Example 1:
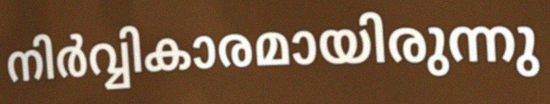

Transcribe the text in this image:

നിർവ്വികാരമായിരുന്നു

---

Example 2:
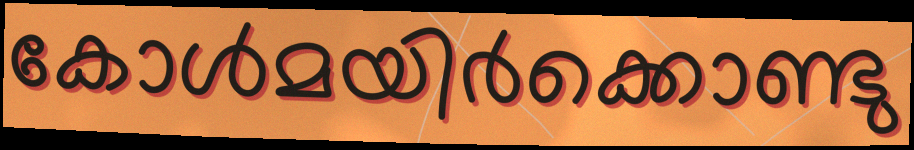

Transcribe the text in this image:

കോൾമയിർക്കൊണ്ടു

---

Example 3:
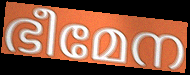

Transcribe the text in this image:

ഭീമേന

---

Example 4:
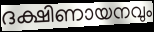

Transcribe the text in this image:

ദക്ഷിണായനവും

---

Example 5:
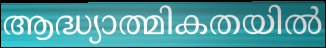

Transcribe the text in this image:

ആദ്ധ്യാത്മികതയിൽ